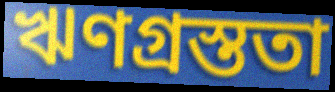
ঋণগ্রস্ততা